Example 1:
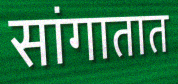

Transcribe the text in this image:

सांगातात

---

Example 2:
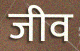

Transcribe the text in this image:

जीव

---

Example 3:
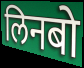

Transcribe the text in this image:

लिनबो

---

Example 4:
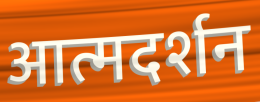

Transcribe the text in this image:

आत्मदर्शन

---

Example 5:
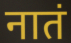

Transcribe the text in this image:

नातं